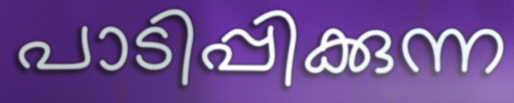
പാടിപ്പിക്കുന്ന